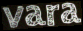
vara